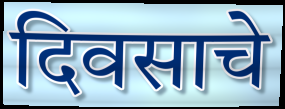
दिवसाचे